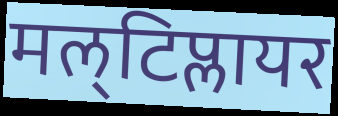
मल्टिप्लायर